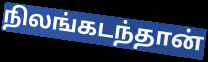
நிலங்கடந்தான்